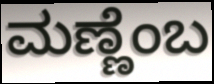
ಮಣ್ಣೆಂಬ